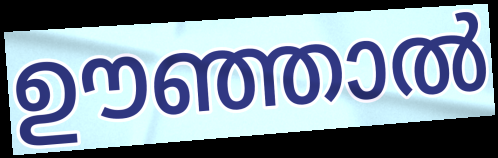
ഊഞ്ഞാൽ